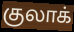
குலாக்